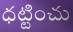
ధట్టించు